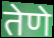
तेणे